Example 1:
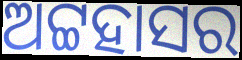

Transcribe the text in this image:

ଅଟ୍ଟହାସର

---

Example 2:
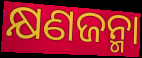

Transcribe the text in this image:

କ୍ଷଣଜନ୍ମା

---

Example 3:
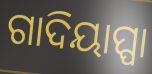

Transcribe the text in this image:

ଗାଦିୟାପ୍ପା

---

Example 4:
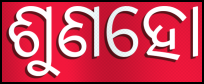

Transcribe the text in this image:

ଶୁଣହୋ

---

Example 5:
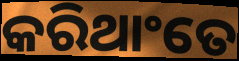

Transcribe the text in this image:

କରିଥାଂତେ